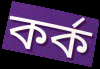
কর্ক